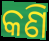
କଣି